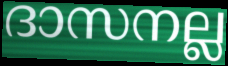
ദാസനല്ല